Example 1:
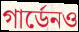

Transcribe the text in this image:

গার্ডেনও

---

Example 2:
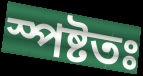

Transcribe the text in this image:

স্পষ্টতঃ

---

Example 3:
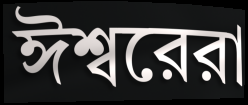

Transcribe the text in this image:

ঈশ্বরেরা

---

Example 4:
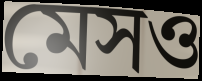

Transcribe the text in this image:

মেসও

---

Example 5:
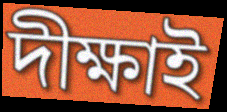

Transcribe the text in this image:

দীক্ষাই